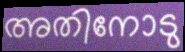
അതിനോടു